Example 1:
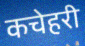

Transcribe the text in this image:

कचेहरी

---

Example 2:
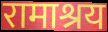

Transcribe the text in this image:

रामाश्रय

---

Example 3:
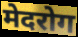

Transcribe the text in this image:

मेदरोग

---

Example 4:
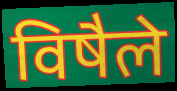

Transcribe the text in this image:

विषैले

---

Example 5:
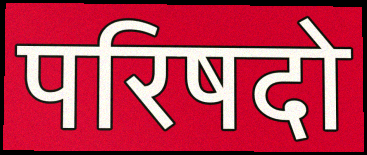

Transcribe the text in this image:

परिषदो